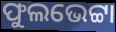
ଫୁଲଭେଟ୍ଟା